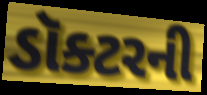
ડૉક્ટરની